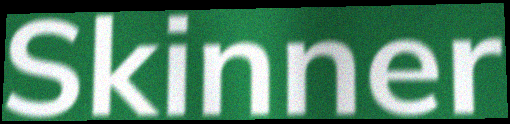
Skinner